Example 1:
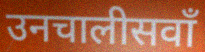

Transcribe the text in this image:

उनचालीसवाँ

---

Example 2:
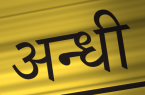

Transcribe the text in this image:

अन्धी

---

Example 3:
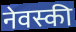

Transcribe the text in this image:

नेवस्की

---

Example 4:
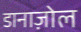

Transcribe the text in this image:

डानाज़ोल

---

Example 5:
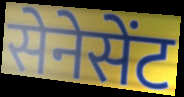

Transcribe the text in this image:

सेनेसेंट